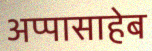
अप्पासाहेब